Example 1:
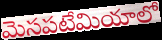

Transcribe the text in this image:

మెసపటేమియాలో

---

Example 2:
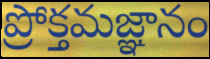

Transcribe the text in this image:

ప్రోక్తమజ్ఞానం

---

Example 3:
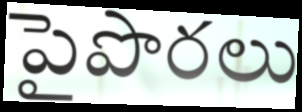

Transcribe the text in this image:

పైపొరలు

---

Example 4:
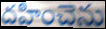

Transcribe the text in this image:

దహించెను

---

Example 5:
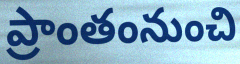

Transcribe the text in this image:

ప్రాంతంనుంచి